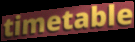
timetable